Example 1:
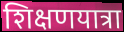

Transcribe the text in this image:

शिक्षणयात्रा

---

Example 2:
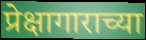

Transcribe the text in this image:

प्रेक्षागाराच्या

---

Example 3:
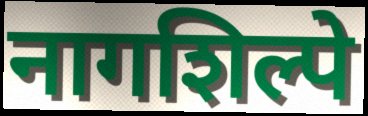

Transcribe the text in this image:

नागशिल्पे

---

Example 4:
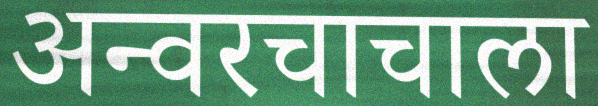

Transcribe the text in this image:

अन्वरचाचाला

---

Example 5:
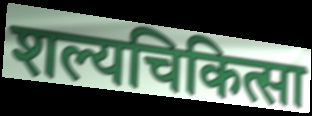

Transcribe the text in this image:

शल्‍यचिकित्‍सा